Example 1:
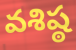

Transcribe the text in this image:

వశిష్ఠ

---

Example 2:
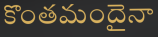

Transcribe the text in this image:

కొంతమందైనా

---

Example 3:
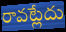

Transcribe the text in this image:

రావట్లేదు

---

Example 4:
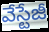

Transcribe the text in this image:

వేస్టేజీ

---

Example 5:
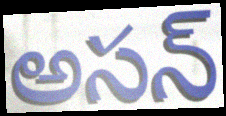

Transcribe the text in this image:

అసన్